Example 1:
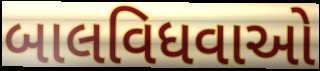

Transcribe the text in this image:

બાલવિધવાઓ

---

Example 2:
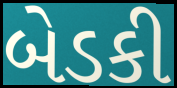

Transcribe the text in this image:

બેડકી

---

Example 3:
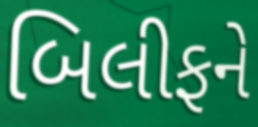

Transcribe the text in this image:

બિલીફને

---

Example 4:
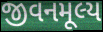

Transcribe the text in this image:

જીવનમૂલ્ય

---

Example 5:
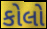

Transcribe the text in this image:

કોલો